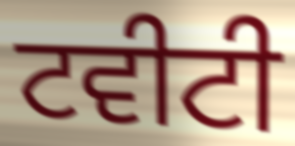
ਟਵੀਟੀ